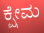
ಕ್ಷೇಮ